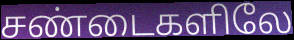
சண்டைகளிலே